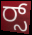
ರ್‍ಸ್